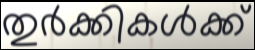
തുർക്കികൾക്ക്